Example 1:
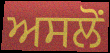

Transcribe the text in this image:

ਅਸਲੋਂ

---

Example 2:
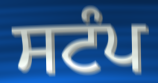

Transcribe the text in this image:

ਸਟੰਪ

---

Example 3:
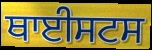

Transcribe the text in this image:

ਥਾਈਸਟਸ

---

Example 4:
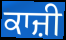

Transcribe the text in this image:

ਕਾਜ਼ੀ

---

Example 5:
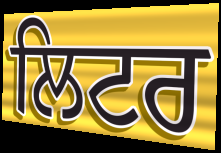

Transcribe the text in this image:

ਲਿਟਰ